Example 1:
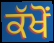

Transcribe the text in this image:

ਕੱਖੋਂ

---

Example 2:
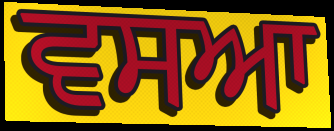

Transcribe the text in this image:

ਵਸਆ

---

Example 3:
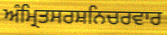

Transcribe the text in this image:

ਅੰਮ੍ਰਿਤਸਰਸ਼ਨਿਚਰਵਾਰ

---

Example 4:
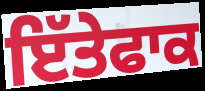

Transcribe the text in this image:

ਇੱਤੇਫਾਕ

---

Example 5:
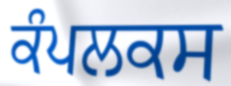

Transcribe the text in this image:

ਕੰਪਲਕਸ